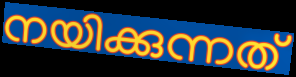
നയിക്കുന്നത്